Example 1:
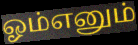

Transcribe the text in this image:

ஓம்எனும்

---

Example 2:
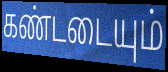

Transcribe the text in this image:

கண்டடையும்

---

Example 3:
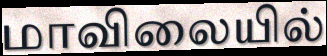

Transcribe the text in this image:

மாவிலையில்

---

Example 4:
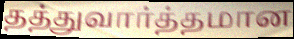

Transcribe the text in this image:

தத்துவார்த்தமான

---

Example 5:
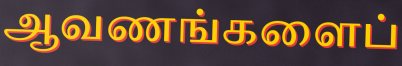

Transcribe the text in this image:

ஆவணங்களைப்